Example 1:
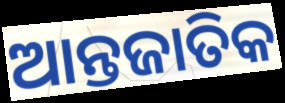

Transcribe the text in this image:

ଆନ୍ତଜାତିକ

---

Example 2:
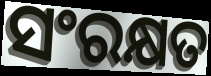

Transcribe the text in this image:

ସଂରକ୍ଷତ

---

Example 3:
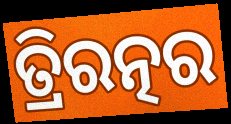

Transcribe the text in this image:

ତ୍ରିରତ୍ନର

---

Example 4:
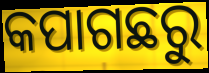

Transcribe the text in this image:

କପାଗଛରୁ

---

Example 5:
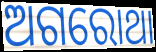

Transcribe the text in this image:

ଅଗରୋଥା